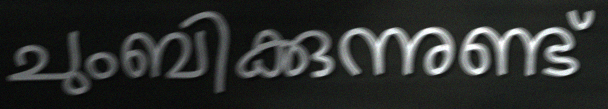
ചുംബിക്കുന്നുണ്ട്